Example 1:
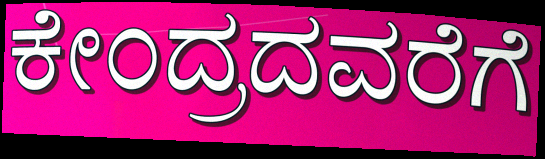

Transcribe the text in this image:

ಕೇಂದ್ರದವರೆಗೆ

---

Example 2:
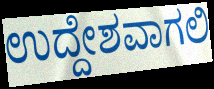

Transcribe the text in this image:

ಉದ್ದೇಶವಾಗಲಿ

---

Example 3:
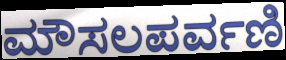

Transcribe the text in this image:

ಮೌಸಲಪರ್ವಣಿ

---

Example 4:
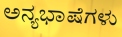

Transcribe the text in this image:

ಅನ್ಯಭಾಷೆಗಳು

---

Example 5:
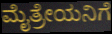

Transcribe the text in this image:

ಮೈತ್ರೇಯನಿಗೆ